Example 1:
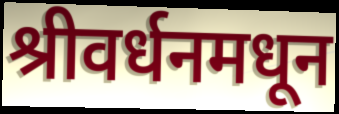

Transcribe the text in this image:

श्रीवर्धनमधून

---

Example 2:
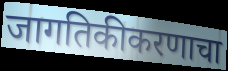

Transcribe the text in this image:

जागतिकीकरणाचा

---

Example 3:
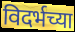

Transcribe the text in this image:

विदर्भच्या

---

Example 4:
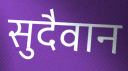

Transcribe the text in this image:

सुदैवान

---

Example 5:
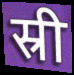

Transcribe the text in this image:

स्री